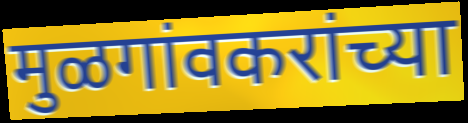
मुळगांवकरांच्या